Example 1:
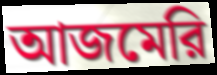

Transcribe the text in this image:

আজমেরি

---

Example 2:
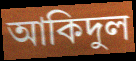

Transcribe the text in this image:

আকিদুল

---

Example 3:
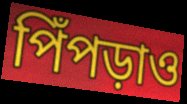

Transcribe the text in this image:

পিঁপড়াও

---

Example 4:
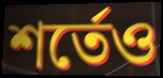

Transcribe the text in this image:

শর্তেও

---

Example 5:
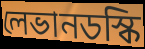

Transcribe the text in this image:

লেভানডস্কি